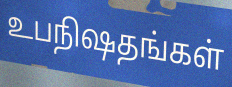
உபநிஷதங்கள்